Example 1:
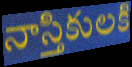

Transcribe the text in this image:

నాస్తికులకి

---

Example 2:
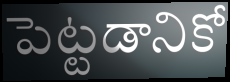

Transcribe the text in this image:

పెట్టడానికో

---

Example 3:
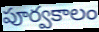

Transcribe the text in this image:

పూర్వకాలం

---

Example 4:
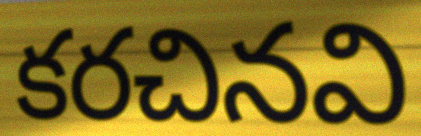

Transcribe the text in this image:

కరచినవి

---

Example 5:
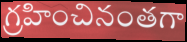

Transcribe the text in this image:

గ్రహించినంతగా